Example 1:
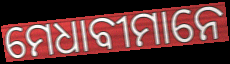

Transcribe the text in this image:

ମେଧାବୀମାନେ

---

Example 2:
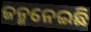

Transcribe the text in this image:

ଜନ୍ମନେଇଛି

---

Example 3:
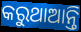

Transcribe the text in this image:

କରୁଥାଆନ୍ତି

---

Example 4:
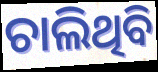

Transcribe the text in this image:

ଚାଲିଥିବି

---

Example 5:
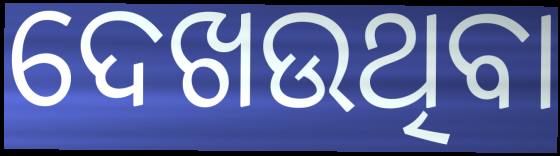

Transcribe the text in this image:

ଦେଖଉଥିବା